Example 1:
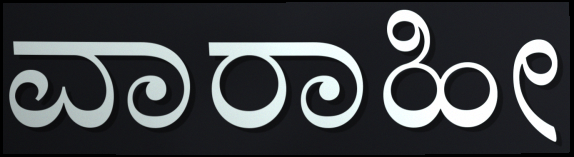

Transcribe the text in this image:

ವಾರಾಹೀ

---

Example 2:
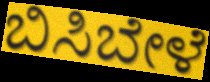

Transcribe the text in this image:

ಬಿಸಿಬೇಳೆ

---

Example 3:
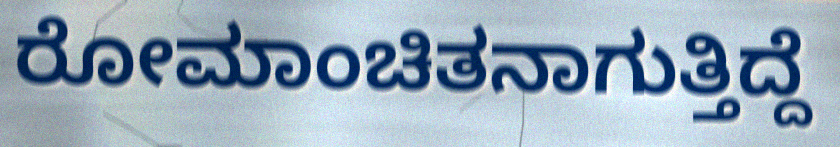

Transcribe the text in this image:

ರೋಮಾಂಚಿತನಾಗುತ್ತಿದ್ದೆ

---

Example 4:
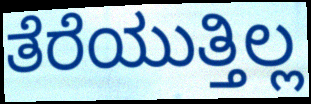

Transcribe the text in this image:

ತೆರೆಯುತ್ತಿಲ್ಲ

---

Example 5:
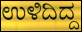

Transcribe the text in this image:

ಉಳಿದಿದ್ದ